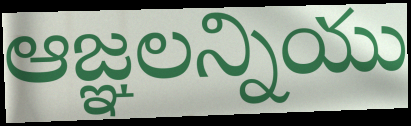
ఆజ్ఞలన్నియు